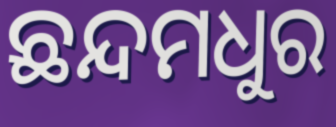
ଛନ୍ଦମଧୁର